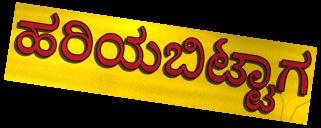
ಹರಿಯಬಿಟ್ಟಾಗ